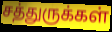
சத்துருக்கள்